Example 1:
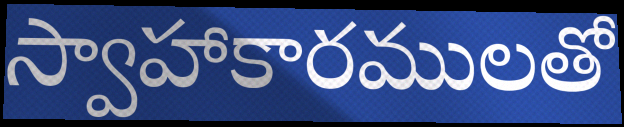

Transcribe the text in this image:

స్వాహాకారములతో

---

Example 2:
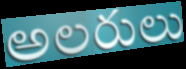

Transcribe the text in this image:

అలరులు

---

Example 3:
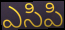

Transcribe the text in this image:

ఎసిపి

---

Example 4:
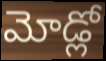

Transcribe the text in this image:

మోడ్లో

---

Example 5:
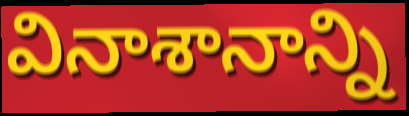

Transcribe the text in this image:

వినాశానాన్ని